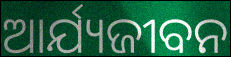
ଆର୍ଯ୍ୟଜୀବନ